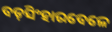
ବଡ଼ସିଂହାରବେଳେ